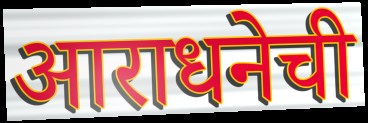
आराधनेची